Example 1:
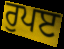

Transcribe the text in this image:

ਰੁਪੲ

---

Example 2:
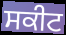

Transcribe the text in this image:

ਸਕੀਟ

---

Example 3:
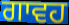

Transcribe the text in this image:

ਗਾਵਹ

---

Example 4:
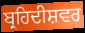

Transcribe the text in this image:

ਬ੍ਰਹਿਦੀਸ਼ਵਰ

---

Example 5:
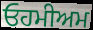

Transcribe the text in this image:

ਓਹਮੀਅਮ